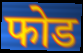
फोड